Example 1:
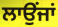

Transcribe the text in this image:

ਲਾਉਂਜਾਂ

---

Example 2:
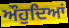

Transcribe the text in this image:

ਔਹੁਦਿਆਂ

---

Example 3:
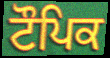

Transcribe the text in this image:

ਟੌਪਿਕ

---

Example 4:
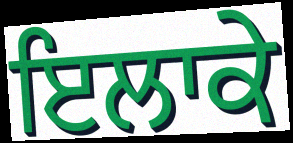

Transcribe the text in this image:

ਇਲਾਕੇ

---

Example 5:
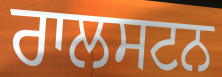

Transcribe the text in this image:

ਰਾਲਸਟਨ